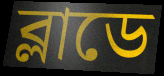
ব্লাডে